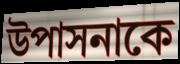
উপাসনাকে